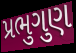
પ્રભુગુણ